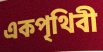
একপৃথিবী